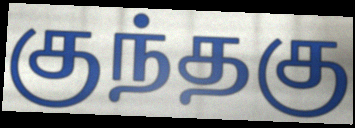
குந்தகு